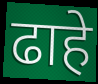
ढाहे